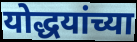
योद्धयांच्या